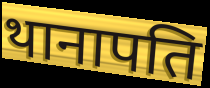
थानापति